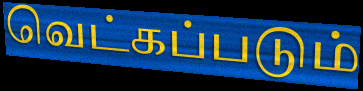
வெட்கப்படும்